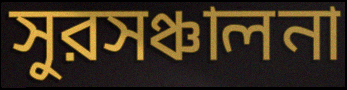
সুরসঞ্চালনা